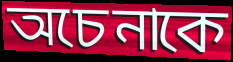
অচেনাকে